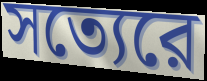
সত্যেরে